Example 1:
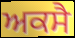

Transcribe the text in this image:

ਅਕਸੈ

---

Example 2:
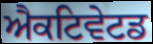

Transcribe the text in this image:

ਐਕਟਿਵੇਟਡ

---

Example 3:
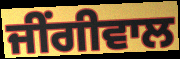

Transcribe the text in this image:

ਜੀਂਗੀਵਾਲ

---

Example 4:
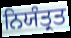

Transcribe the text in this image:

ਨਿਯੰਤ੍ਰਤ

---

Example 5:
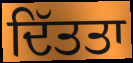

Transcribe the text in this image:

ਦਿੱਤਤਾ